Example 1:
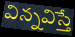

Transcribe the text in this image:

విన్నవిస్తే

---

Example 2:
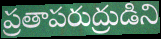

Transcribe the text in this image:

ప్రతాపరుద్రుడిని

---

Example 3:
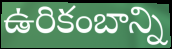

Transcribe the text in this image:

ఉరికంబాన్ని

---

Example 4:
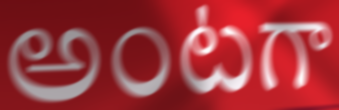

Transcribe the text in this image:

అంటగా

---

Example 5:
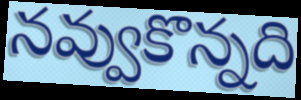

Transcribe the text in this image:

నవ్వుకొన్నది